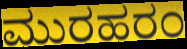
ಮುರಹರಂ